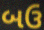
બઉ